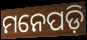
ମନେପଡ଼ି